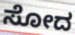
ಸೋದ